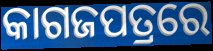
କାଗଜପତ୍ରରେ